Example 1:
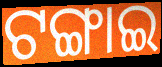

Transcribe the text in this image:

ଟଙ୍ଗାଇ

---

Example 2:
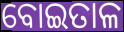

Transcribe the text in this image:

ବୋଇତାଳ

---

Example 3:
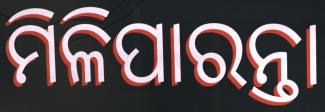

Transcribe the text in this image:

ମିଳିପାରନ୍ତା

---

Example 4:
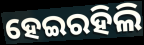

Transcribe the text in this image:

ହେଇରହିଲି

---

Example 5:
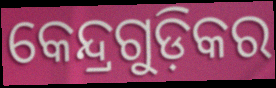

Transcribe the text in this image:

କେନ୍ଦ୍ରଗୁଡ଼ିକର